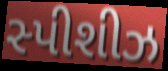
સ્પીશીઝ